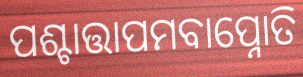
ପଶ୍ଚାତ୍ତାପମବାପ୍ନୋତି